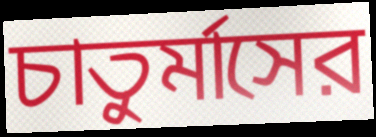
চাতুর্মাসের